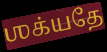
ஶக்யதே